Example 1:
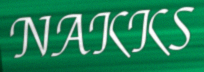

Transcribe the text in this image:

NAKKS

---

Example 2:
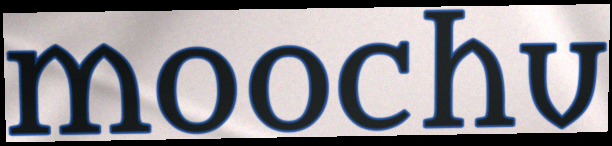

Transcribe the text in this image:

moochu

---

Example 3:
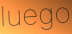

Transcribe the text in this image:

luego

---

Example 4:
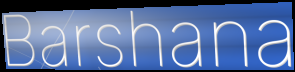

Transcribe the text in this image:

Barshana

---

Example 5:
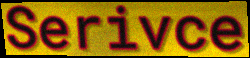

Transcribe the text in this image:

Serivce